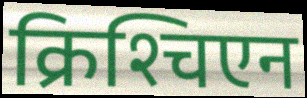
क्रिश्चिएन